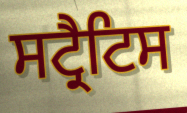
ਸਟ੍ਰੈਟਿਸ